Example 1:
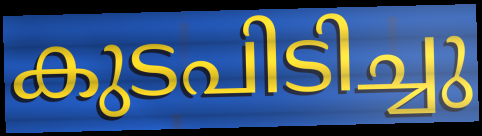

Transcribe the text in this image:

കുടപിടിച്ചു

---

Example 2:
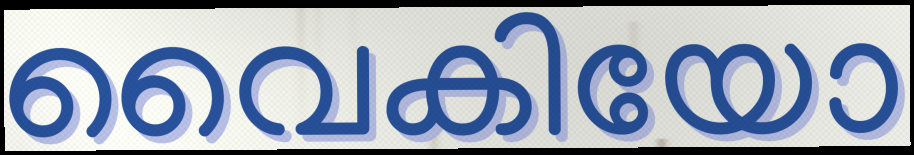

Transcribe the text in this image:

വൈകിയോ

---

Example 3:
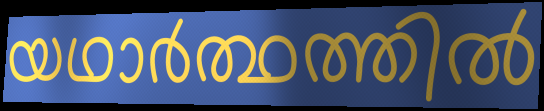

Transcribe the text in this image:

യഥാർത്ഥത്തിൽ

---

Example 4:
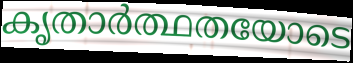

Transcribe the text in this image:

കൃതാർത്ഥതയോടെ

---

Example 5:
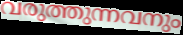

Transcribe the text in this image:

വരുത്തുന്നവനും